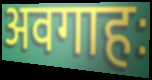
अवगाहः